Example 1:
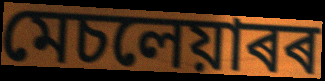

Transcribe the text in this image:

মেচলেয়াৰৰ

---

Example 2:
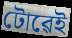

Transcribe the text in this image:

টোৱেই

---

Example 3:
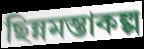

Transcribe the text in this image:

ছিন্নমস্তাকল্প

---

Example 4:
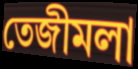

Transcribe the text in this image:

তেজীমলা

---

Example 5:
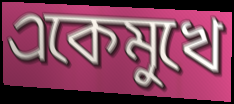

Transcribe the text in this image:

একেমুখে